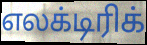
எலக்டிரிக்